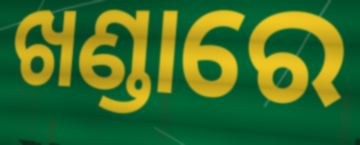
ଖଣ୍ଡାରେ